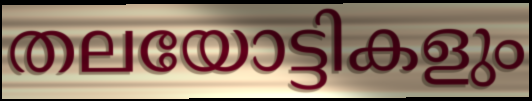
തലയോട്ടികളും